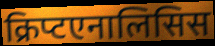
क्रिप्टएनालिसिस